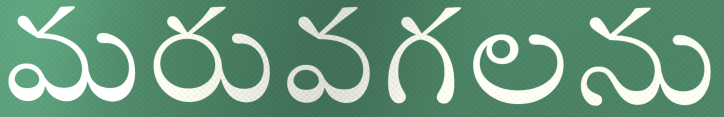
మరువగలను